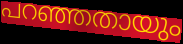
പറഞ്ഞതായും